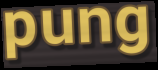
pung